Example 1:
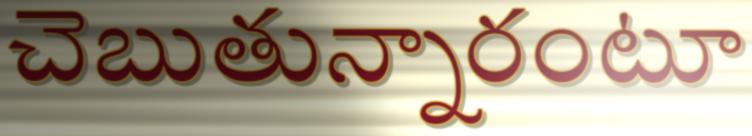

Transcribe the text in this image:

చెబుతున్నారంటూ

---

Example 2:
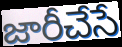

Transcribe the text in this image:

జారీచేసే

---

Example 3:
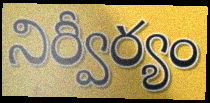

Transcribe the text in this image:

నిర్వీర్యం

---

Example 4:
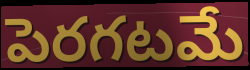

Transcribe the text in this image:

పెరగటమే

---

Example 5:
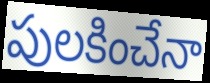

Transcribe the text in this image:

పులకించేనా